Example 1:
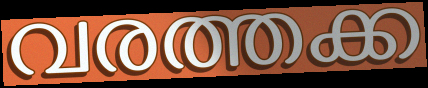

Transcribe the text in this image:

വരത്തക്ക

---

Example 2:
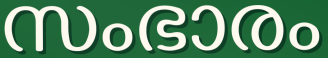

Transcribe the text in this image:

സംഭാരം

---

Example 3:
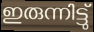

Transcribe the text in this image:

ഇരുന്നിട്ടു്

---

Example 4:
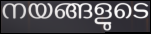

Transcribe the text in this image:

നയങ്ങളുടെ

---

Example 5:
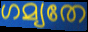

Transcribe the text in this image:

ഗമ്യതേ